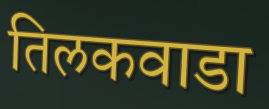
तिलकवाडा